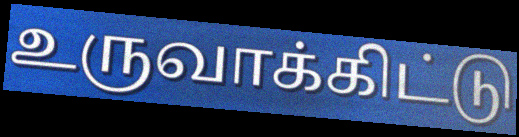
உருவாக்கிட்டு